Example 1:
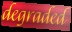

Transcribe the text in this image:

degraded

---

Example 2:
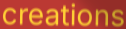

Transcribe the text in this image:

creations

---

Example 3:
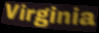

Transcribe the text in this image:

Virginia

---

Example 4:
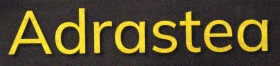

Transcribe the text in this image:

Adrastea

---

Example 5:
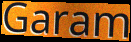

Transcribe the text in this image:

Garam